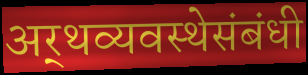
अर्थव्यवस्थेसंबंधी